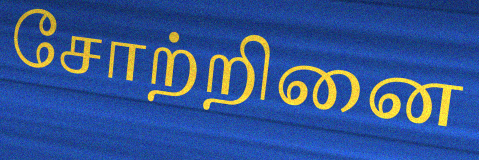
சோற்றினை